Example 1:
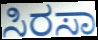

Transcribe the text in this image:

ಸಿರಸಾ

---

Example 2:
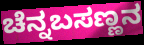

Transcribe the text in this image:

ಚೆನ್ನಬಸಣ್ಣನ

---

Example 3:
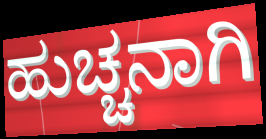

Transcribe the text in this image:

ಹುಚ್ಚನಾಗಿ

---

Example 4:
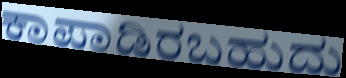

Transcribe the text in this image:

ಕಾಪಾಡಿರಬಹುದು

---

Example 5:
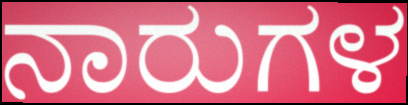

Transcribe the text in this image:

ನಾರುಗಳ